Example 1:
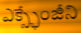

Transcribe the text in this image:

ఎక్స్ఛేంజీని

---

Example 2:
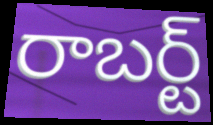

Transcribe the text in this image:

రాబర్ట్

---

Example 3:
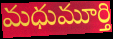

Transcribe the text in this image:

మధుమూర్తి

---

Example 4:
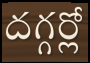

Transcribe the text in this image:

దగ్గర్లో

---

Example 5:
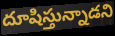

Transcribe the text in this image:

దూషిస్తున్నాడని